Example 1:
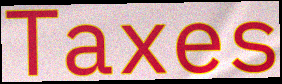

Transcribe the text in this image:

Taxes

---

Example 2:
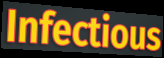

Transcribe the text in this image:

Infectious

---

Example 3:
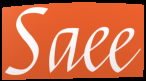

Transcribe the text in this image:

Saee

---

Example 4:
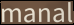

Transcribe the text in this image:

manal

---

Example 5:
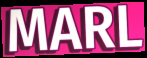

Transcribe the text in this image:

MARL